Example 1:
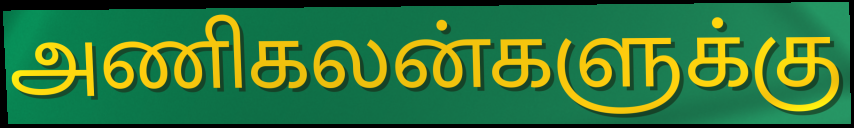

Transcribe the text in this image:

அணிகலன்களுக்கு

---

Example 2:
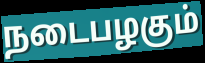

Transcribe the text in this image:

நடைபழகும்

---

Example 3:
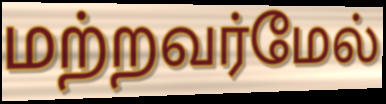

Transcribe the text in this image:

மற்றவர்மேல்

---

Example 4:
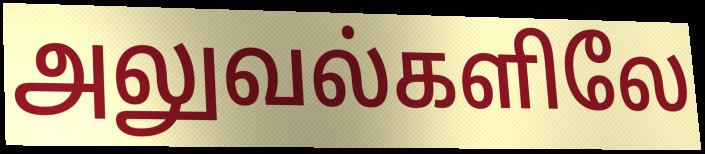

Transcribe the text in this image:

அலுவல்களிலே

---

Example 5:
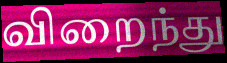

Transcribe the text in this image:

விறைந்து